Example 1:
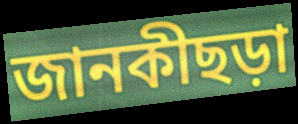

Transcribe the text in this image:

জানকীছড়া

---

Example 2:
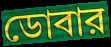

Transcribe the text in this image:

ডোবার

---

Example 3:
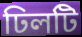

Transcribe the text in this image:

ঢিলটি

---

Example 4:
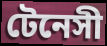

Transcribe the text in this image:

টেনেসী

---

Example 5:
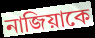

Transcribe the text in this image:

নাজিয়াকে